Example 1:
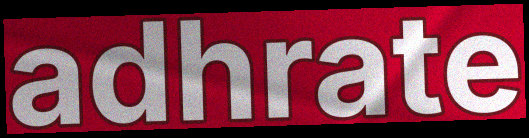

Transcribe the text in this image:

adhrate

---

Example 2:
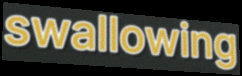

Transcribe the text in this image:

swallowing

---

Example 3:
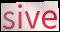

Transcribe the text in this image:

sive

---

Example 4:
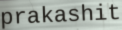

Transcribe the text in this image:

prakashit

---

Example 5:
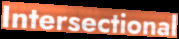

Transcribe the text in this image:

Intersectional